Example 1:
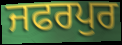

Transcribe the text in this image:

ਜਫਰਪੁਰ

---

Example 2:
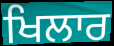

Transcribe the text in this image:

ਖਿਲਾਰ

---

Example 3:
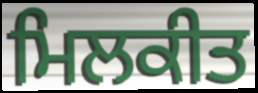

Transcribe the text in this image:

ਮਿਲਕੀਤ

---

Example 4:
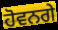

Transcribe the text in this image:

ਹੋਵਨਗੇ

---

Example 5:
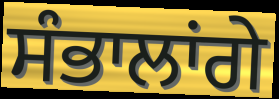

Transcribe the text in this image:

ਸੰਭਾਲਾਂਗੇ